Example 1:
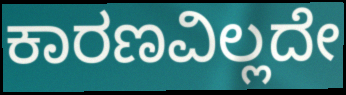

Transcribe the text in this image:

ಕಾರಣವಿಲ್ಲದೇ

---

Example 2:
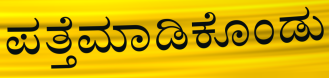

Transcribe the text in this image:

ಪತ್ತೆಮಾಡಿಕೊಂಡು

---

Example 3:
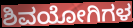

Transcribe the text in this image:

ಶಿವಯೋಗಿಗಳ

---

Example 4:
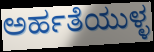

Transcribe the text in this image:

ಅರ್ಹತೆಯುಳ್ಳ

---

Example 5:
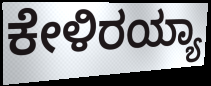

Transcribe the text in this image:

ಕೇಳಿರಯ್ಯಾ